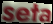
seta